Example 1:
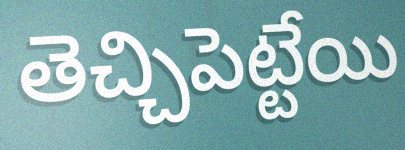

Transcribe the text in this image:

తెచ్చిపెట్టేయి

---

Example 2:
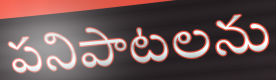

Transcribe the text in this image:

పనిపాటలను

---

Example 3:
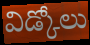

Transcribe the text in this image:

విడ్కోలు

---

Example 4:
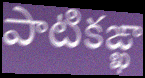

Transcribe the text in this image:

పాటికఙ్ఖా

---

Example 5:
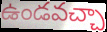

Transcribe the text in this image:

ఉండవచ్చా